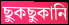
ছুকছুকানি